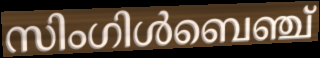
സിംഗിൾബെഞ്ച്